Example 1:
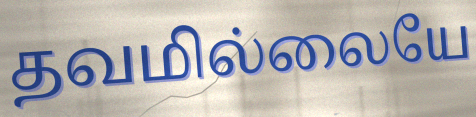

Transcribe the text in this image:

தவமில்லையே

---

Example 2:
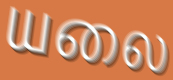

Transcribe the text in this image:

யலை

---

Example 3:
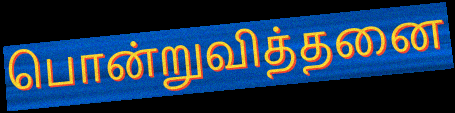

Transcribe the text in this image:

பொன்றுவித்தனை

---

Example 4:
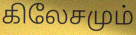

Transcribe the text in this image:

கிலேசமும்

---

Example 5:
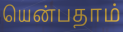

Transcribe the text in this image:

யென்பதாம்